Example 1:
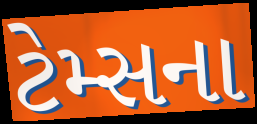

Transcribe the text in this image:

ટેમ્સના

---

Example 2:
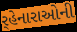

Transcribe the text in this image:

ર્‌હેનારાઓની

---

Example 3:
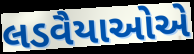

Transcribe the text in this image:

લડવૈયાઓએ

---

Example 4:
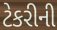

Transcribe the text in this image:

ટેકરીની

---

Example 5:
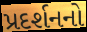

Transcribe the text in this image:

પ્રદર્શનનો